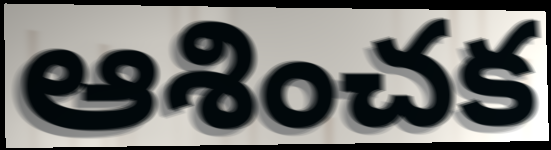
ఆశించక